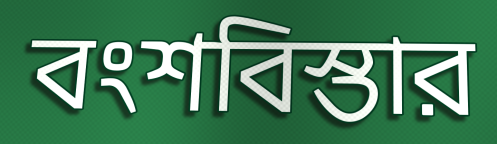
বংশবিস্তার